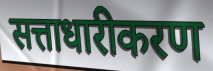
सत्ताधारीकरण